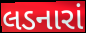
લડનારાં